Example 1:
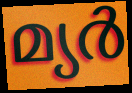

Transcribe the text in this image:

മ്യർ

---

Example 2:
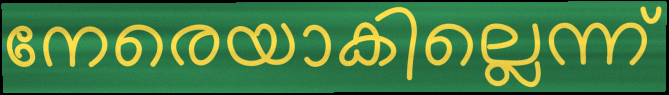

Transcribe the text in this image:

നേരെയാകില്ലെന്ന്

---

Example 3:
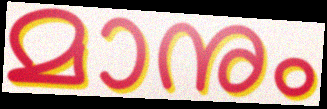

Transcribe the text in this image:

മാനും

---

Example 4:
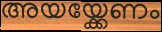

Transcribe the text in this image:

അയയ്ക്കേണം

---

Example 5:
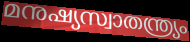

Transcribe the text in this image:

മനുഷ്യസ്വാതന്ത്ര്യം